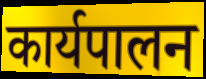
कार्यपालन